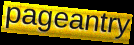
pageantry